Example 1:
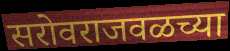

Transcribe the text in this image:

सरोवराजवळच्या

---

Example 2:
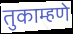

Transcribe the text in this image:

तुकाम्हणे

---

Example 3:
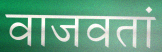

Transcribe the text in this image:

वाजवतां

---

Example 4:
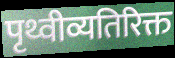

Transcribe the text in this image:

पृथ्वीव्यतिरिक्त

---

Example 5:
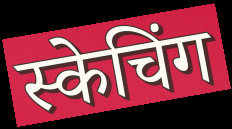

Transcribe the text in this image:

स्केचिंग